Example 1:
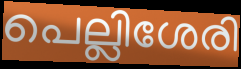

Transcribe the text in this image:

പെല്ലിശേരി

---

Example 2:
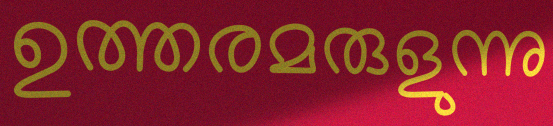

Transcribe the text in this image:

ഉത്തരമരുളുന്നു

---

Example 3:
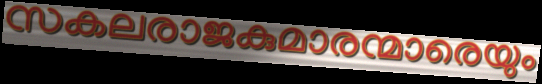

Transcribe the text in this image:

സകലരാജകുമാരന്മാരെയും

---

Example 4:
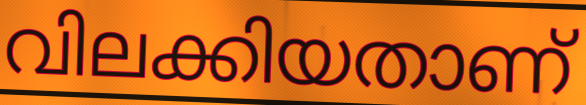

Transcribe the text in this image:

വിലക്കിയതാണ്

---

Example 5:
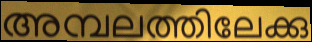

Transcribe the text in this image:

അമ്പലത്തിലേക്കു